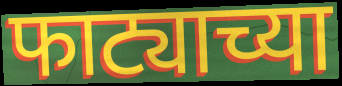
फाट्याच्या